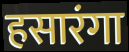
हसारंगा